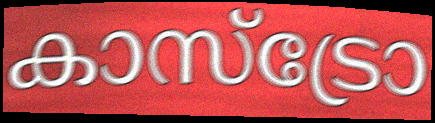
കാസ്ട്രോ